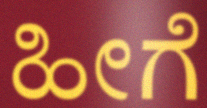
ಹೀಗೆ